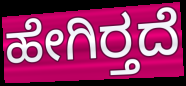
ಹೇಗಿರ್‍ತದೆ